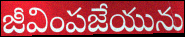
జీవింపజేయును